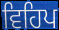
ਵਿਹਿਪ